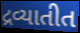
દ્રવ્યાતીત